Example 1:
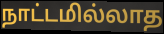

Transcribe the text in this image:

நாட்டமில்லாத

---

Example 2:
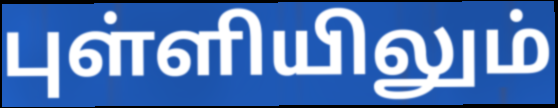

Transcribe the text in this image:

புள்ளியிலும்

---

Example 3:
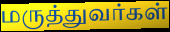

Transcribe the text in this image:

மருத்துவர்கள்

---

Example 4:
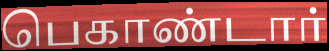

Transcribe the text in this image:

பெகாண்டார்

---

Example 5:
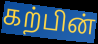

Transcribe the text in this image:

கற்பின்